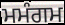
ਮਮੰਗਮ